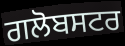
ਗਲੋਬਸਟਰ